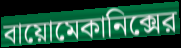
বায়োমেকানিক্সের